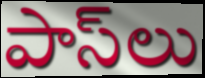
పాస్‌లు